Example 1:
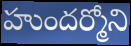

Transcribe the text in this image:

హుందర్మోని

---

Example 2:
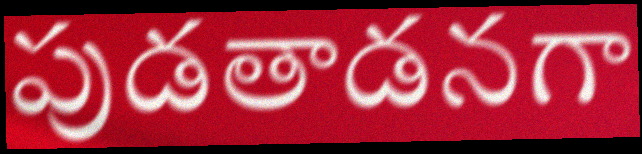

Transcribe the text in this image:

పుడతాడనగా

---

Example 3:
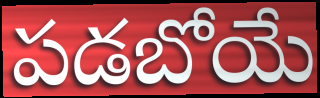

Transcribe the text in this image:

పడబోయే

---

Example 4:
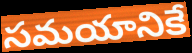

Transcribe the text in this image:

సమయానికే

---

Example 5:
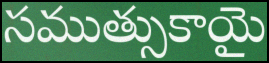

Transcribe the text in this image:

సముత్సుకాయై